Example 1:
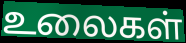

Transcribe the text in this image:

உலைகள்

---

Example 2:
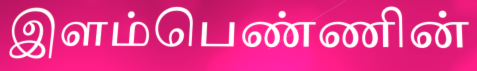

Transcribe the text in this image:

இளம்பெண்ணின்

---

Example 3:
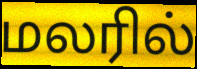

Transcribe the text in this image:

மலரில்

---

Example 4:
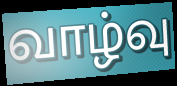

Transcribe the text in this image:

வாழ்வு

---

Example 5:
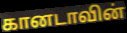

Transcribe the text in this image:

கானடாவின்